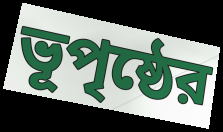
ভূপৃষ্ঠের